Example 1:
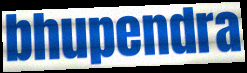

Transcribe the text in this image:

bhupendra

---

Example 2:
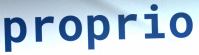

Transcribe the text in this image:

proprio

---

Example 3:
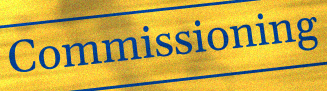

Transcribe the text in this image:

Commissioning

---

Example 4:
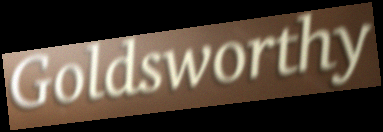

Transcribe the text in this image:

Goldsworthy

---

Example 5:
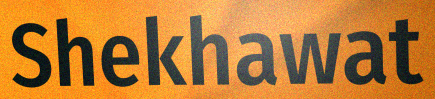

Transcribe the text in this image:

Shekhawat